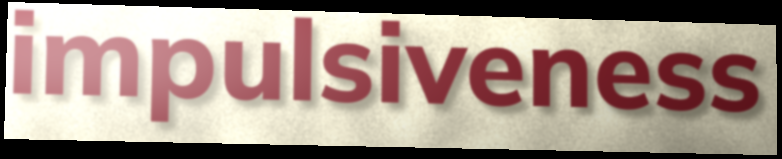
impulsiveness